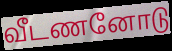
வீடணனோடு